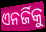
ଏନର୍ଜିକୁ